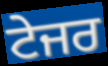
ਟੇਜਰ